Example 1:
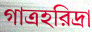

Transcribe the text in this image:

গাত্রহরিদ্রা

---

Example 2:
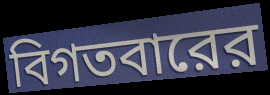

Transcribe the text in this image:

বিগতবারের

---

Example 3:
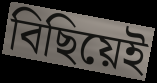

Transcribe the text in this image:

বিছিয়েই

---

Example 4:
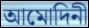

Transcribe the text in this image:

আমোদিনী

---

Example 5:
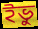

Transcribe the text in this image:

ইভু